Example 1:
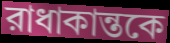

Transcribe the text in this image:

রাধাকান্তকে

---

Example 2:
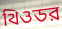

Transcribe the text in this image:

থিওডর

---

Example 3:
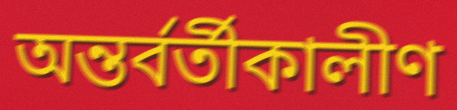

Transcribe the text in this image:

অন্তর্বর্তীকালীণ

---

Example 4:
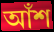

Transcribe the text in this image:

আঁশ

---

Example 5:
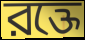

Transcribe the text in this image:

রক্তে